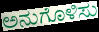
ಅನುಗೊಳಿಸು